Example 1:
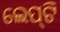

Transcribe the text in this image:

ଲେପ୍‍ଟି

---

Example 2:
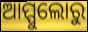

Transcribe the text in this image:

ଆପ୍ପୁଲୋରୁ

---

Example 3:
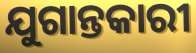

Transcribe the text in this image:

ଯୁଗାନ୍ତକାରୀ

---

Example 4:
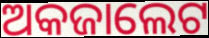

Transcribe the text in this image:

ଅକଜାଲେଟ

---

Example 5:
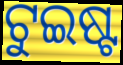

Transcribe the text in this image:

ଟୁଇଷ୍ଟ